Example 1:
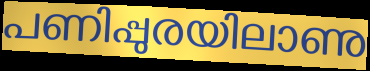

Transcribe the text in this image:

പണിപ്പുരയിലാണു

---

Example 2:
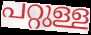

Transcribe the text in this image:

പറ്റുള്ള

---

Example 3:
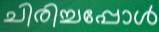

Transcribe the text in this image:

ചിരിച്ചപ്പോൾ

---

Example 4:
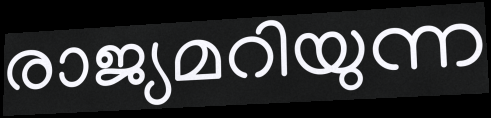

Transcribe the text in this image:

രാജ്യമറിയുന്ന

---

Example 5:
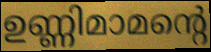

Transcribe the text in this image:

ഉണ്ണിമാമന്റെ